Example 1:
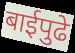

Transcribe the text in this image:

बाईपुढे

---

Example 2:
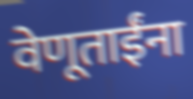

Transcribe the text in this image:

वेणूताईंना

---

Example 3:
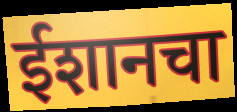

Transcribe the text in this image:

ईशानचा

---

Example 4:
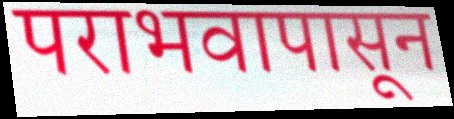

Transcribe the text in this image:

पराभवापासून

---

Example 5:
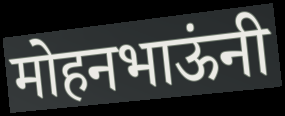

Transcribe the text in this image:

मोहनभाऊंनी